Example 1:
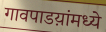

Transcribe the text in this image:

गावपाडय़ांमध्ये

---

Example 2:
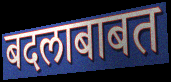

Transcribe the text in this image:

बदलाबाबत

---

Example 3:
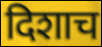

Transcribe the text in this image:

दिशाच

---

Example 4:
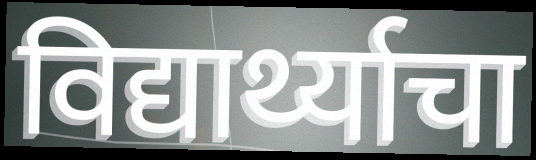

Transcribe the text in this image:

विद्यार्थ्याचा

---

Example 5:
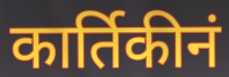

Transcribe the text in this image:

कार्तिकीनं